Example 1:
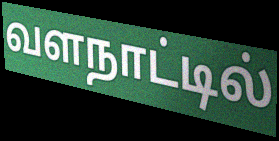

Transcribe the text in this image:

வளநாட்டில்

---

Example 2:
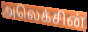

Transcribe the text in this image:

அலெக்சின்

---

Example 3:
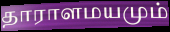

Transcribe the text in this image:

தாராளமயமும்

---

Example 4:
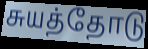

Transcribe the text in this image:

சுயத்தோடு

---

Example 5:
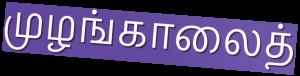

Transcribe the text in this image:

முழங்காலைத்